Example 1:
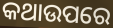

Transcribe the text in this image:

କଥାଉପରେ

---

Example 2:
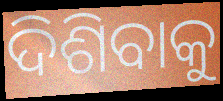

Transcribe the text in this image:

ଦିଶିବାକୁ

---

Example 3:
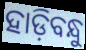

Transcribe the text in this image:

ହାଡ଼ିବନ୍ଧୁ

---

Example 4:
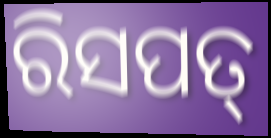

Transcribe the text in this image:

ରିସପତ୍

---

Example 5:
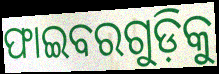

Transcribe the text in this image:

ଫାଇବରଗୁଡ଼ିକୁ